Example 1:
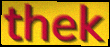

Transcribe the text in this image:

thek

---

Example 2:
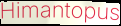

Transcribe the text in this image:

Himantopus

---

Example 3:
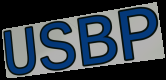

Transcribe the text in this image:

USBP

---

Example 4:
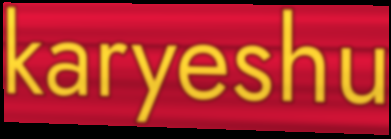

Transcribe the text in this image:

karyeshu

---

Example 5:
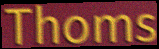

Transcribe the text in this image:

Thoms